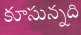
కూసున్నది